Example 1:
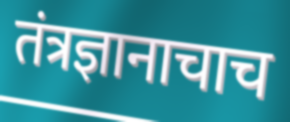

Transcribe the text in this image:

तंत्रज्ञानाचाच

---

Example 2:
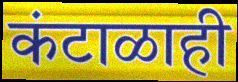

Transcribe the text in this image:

कंटाळाही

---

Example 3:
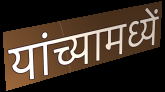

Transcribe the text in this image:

यांच्यामध्यें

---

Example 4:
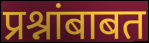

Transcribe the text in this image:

प्रश्नांबाबत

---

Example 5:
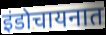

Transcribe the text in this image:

इंडोचायनात